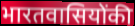
भारतवासियोंकी